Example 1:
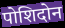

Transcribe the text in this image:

पोशिदोन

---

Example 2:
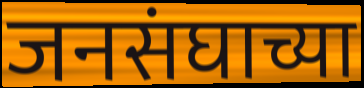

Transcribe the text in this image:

जनसंघाच्या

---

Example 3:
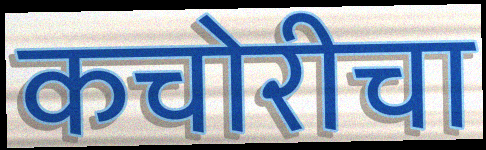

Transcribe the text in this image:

कचोरीचा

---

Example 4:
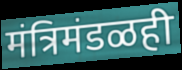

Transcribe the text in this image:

मंत्रिमंडळही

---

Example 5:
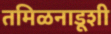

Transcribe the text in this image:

तमिळनाडूशी